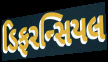
ડિફરન્સિયલ